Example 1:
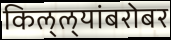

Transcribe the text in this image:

किल्ल्यांबरोबर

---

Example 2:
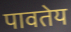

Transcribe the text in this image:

पावतेय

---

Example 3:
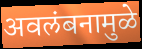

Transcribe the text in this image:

अवलंबनामुळे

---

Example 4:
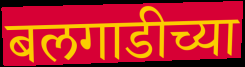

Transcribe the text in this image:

बलगाडीच्या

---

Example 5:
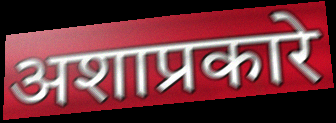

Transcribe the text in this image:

अशाप्रकारे